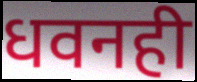
धवनही